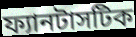
ফ্যানটাসটিক